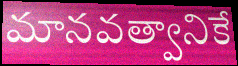
మానవత్వానికే